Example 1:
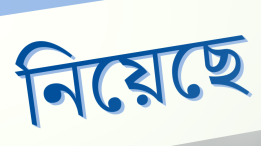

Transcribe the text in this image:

নিয়েছে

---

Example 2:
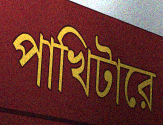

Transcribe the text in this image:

পাখিটারে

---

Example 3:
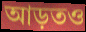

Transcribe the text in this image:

আড়তও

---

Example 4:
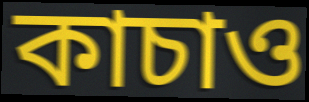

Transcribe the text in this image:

কাচাও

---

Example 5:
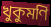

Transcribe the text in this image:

খুকুমণি